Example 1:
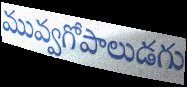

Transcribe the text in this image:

మువ్వగోపాలుడగు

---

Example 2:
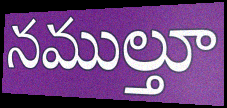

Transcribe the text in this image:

నముల్తూ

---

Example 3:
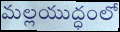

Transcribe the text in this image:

మల్లయుద్ధంలో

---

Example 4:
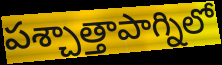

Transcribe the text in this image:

పశ్చాత్తాపాగ్నిలో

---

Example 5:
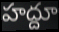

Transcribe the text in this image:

హద్దూ